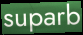
suparb